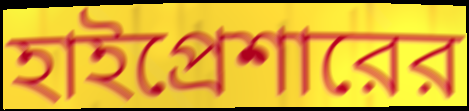
হাইপ্রেশারের